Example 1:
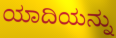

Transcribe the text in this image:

ಯಾದಿಯನ್ನು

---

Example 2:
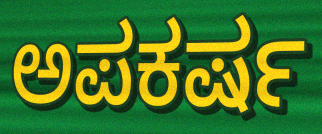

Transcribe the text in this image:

ಅಪಕರ್ಷ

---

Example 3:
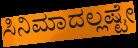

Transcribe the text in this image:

ಸಿನಿಮಾದಲ್ಲಷ್ಟೇ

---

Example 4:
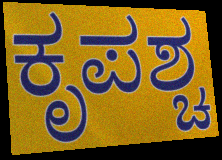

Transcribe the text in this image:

ಕೃಪಶ್ಚ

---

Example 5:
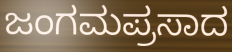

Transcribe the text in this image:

ಜಂಗಮಪ್ರಸಾದ